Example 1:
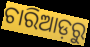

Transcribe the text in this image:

ଚାରିଆଡ଼ରୁ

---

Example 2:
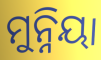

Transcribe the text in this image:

ମୁନ୍ନିୟା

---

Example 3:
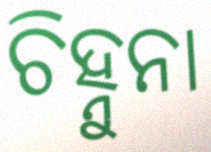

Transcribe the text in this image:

ଚିହ୍ନୁନା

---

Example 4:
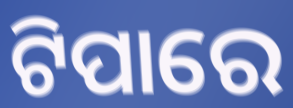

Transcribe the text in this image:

ଟିପାରେ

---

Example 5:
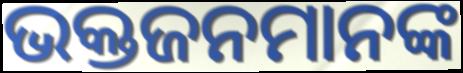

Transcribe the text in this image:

ଭକ୍ତଜନମାନଙ୍କ